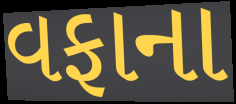
વફાના